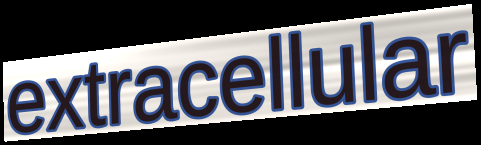
extracellular